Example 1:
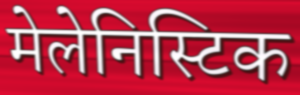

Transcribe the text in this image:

मेलेनिस्टिक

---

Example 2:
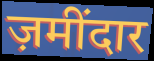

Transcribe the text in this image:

ज़मींदार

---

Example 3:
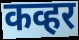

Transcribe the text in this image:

कव्हर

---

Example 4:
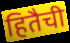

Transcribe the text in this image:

हितैची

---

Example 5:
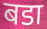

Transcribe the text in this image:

बडा